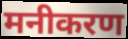
मनीकरण